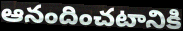
ఆనందించటానికి